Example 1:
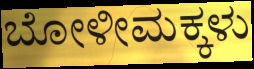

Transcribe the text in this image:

ಬೋಳೀಮಕ್ಕಳು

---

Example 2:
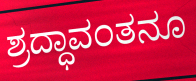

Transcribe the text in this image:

ಶ್ರದ್ಧಾವಂತನೂ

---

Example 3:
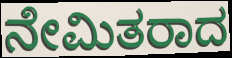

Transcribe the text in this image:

ನೇಮಿತರಾದ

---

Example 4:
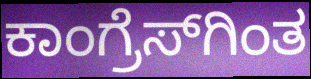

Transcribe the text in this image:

ಕಾಂಗ್ರೆಸ್‌ಗಿಂತ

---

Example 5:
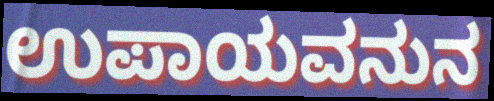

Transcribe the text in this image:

ಉಪಾಯವನುನ